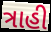
ત્રાહી